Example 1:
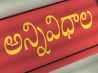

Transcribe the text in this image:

అన్నివిధాల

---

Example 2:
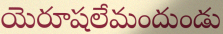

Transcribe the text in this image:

యెరూషలేమందుండు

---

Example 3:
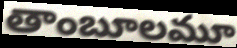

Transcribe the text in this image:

తాంబూలమూ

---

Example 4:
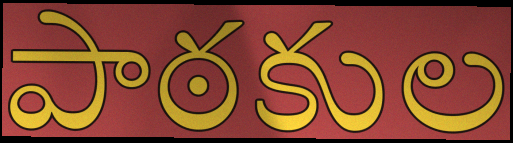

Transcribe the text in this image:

పాఠకుల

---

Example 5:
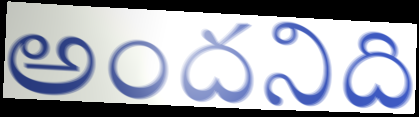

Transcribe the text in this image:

అందనిది